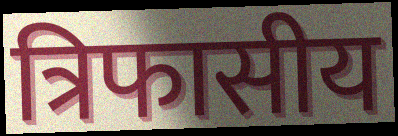
त्रिफासीय